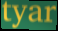
tyar